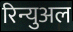
रिन्युअल